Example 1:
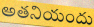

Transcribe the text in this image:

అతనియందు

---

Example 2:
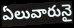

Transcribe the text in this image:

ఏలువారునై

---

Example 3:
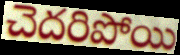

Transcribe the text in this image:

చెదరిపోయి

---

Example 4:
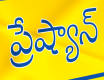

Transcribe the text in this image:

ప్రేష్యాన్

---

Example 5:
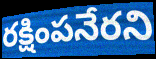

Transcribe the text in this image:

రక్షింపనేరని